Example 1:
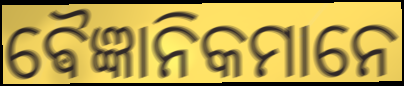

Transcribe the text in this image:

ଵୈଜ୍ଞାନିକମାନେ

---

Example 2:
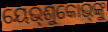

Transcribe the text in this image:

ୟେଭ୍‌ଶୁକୋଭ୍‌ଙ୍କୁ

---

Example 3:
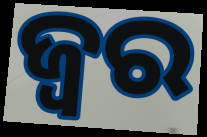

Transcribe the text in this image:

ଜ୍ବର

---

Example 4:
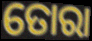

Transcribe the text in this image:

ତୋରା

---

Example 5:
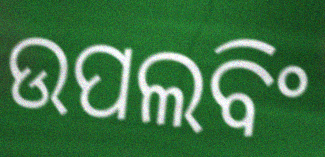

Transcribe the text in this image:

ଉପଲବିଂ